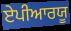
ਏਪੀਆਰਯੂ